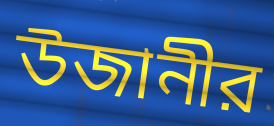
উজানীর